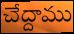
చేద్దాము